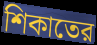
শিকাতের